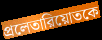
প্রলেতারিয়োতকে